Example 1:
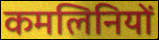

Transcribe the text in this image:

कमलिनियों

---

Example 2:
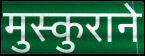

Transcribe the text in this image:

मुस्कुराने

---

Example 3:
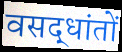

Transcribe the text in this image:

वसद्धांतों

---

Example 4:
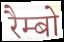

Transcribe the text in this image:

रैम्बो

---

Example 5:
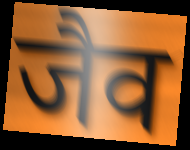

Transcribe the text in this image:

जैव